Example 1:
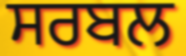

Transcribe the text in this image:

ਸਰਬਲ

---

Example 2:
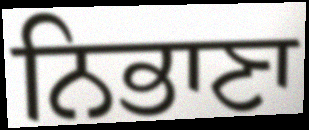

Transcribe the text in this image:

ਨਿਭਾਣਾ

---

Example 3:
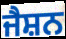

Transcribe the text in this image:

ਜੈਸ਼ਨ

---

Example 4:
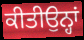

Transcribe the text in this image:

ਕੀਤੀਉਨ੍ਹਾਂ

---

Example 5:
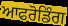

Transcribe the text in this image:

ਆਫਰੋਡਿੰਗ